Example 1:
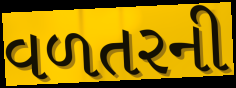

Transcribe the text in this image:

વળતરની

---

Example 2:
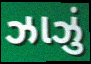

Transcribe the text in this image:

ઝાઝું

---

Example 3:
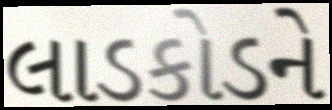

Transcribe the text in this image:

લાડકોડને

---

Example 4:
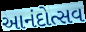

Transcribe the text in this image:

આનંદોત્સવ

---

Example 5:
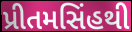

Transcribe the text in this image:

પ્રીતમસિંહથી